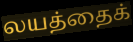
லயத்தைக்